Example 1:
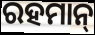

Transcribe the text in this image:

ରହମାନ୍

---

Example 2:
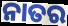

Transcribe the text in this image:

ନାତର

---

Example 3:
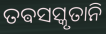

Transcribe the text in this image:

ତଵସସ୍କୃତାନି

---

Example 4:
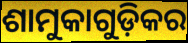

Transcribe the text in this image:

ଶାମୁକାଗୁଡ଼ିକର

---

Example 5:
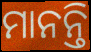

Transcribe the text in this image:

ମାନନ୍ତି